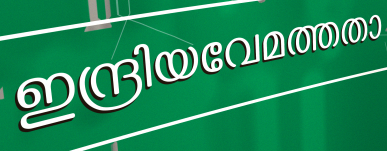
ഇന്ദ്രിയവേമത്തതാ